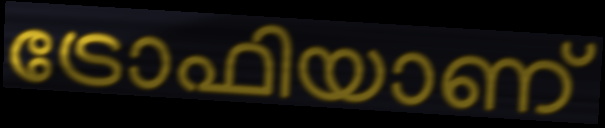
ട്രോഫിയാണ്